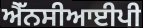
ਐੱਨਸੀਆਈਪੀ